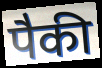
पैकी